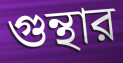
গুন্থার